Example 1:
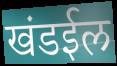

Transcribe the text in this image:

खंडईल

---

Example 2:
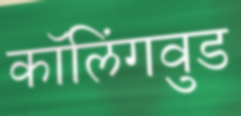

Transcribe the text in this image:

कॉलिंगवुड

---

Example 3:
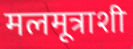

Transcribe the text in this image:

मलमूत्राशी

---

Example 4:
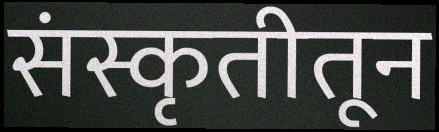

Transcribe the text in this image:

संस्कृतीतून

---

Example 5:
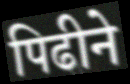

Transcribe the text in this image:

पिढीने